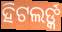
ହିଟଲର୍ଙ୍କ